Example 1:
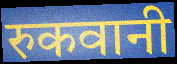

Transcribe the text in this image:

रुकवानी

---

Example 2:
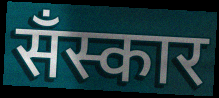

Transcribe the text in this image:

सँस्कार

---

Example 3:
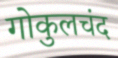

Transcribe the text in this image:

गोकुलचंद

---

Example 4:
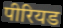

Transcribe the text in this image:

पीरियड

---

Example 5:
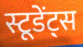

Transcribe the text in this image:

स्टूडेंट़्स